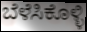
ಬೆಳೆಸಿಕೊಳ್ಳಿ